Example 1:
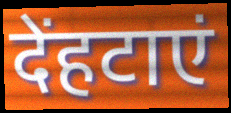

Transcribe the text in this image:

देंहटाएं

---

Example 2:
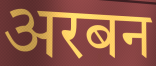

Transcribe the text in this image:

अरबन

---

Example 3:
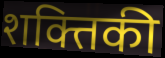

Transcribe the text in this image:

शक्तिकी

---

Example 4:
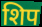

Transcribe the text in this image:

शिप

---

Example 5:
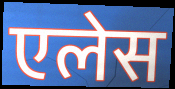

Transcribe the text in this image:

एलेस